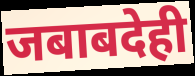
जबाबदेही